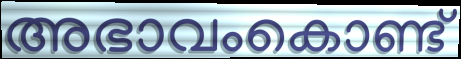
അഭാവംകൊണ്ട്